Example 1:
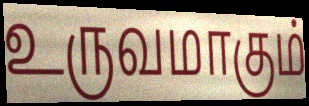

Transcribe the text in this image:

உருவமாகும்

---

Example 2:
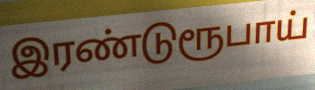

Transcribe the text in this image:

இரண்டுரூபாய்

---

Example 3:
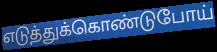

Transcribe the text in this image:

எடுத்துக்கொண்டுபோய்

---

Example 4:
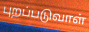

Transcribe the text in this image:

புறப்படுவாள்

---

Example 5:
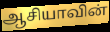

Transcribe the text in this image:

ஆசியாவின்